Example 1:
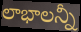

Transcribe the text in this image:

లాభాలన్నీ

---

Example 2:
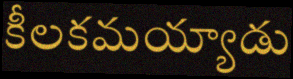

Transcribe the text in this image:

కీలకమయ్యాడు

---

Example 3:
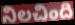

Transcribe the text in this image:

నిలచింది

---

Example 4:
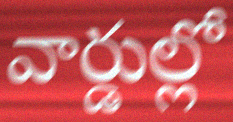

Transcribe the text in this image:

వార్డుల్లో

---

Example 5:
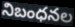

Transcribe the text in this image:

నిబంధనల